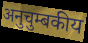
अनुचुम्बकीय